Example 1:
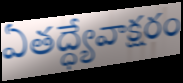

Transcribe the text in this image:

ఏతద్ధ్యేవాక్షరం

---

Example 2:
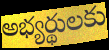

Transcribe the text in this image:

అభ్యర్థులకు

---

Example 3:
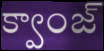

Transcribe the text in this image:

క్వాంజ్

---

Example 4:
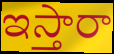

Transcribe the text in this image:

ఇస్తారా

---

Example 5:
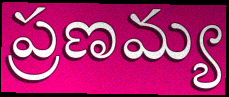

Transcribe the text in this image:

ప్రణమ్య